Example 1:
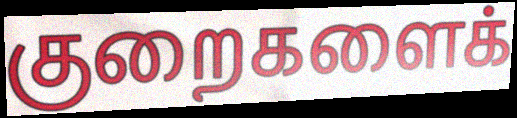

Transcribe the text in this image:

குறைகளைக்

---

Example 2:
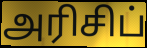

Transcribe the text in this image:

அரிசிப்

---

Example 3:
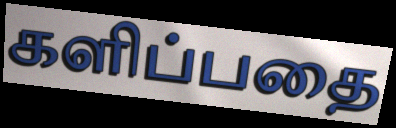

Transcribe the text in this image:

களிப்பதை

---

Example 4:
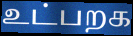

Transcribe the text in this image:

உட்பறக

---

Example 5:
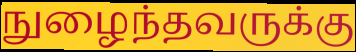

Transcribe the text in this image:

நுழைந்தவருக்கு